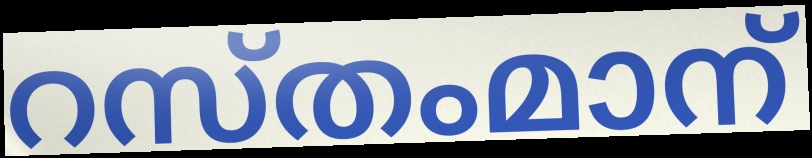
റസ്തംമാന്